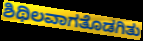
ಶಿಥಿಲವಾಗತೊಡಗಿತು